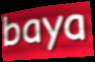
baya